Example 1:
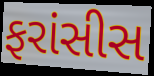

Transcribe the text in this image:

ફરાંસીસ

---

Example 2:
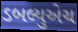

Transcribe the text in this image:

ડબલ્યુએચ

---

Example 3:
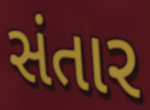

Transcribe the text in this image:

સંતાર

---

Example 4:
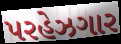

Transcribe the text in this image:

પરહેઝગાર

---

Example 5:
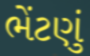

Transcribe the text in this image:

ભેંટણું